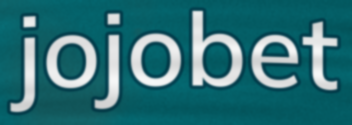
jojobet